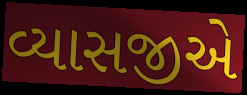
વ્યાસજીએ